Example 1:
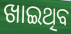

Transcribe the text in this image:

ଖାଇଥିବ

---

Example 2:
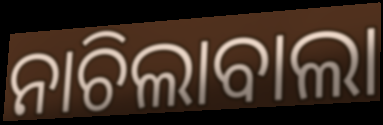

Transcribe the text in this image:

ନାଚିଲାବାଲା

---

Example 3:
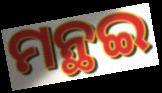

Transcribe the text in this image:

ମନ୍ଥଇ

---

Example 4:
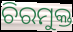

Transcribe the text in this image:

ଚିରମୁକ୍ତ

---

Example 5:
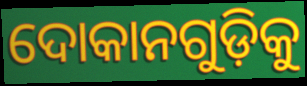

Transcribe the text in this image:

ଦୋକାନଗୁଡ଼ିକୁ